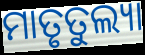
ମାତୃତୁଲ୍ୟା